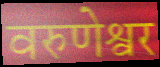
वरुणेश्वर